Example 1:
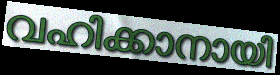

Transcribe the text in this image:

വഹിക്കാനായി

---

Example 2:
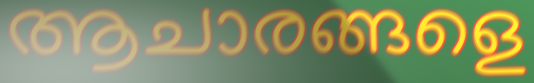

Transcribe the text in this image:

ആചാരങ്ങളെ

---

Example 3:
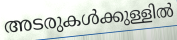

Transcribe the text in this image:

അടരുകൾക്കുള്ളിൽ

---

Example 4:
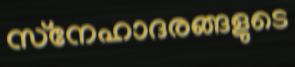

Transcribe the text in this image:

സ്‌നേഹാദരങ്ങളുടെ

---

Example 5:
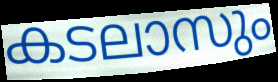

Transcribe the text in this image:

കടലാസും